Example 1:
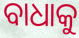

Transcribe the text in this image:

ବାଧାକୁ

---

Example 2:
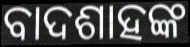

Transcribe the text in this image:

ବାଦଶାହଙ୍କ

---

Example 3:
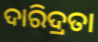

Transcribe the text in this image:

ଦାରିଦ୍ରତା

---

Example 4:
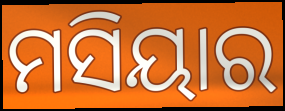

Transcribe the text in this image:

ମସିୟାର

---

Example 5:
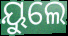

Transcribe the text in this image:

ୟୁଲେ